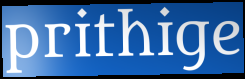
prithige